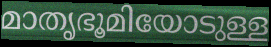
മാതൃഭൂമിയോടുള്ള